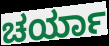
ಚರ್ಯಾ